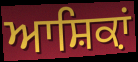
ਆਸ਼ਿਕ਼ਾਂ